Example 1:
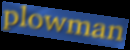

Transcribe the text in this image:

plowman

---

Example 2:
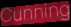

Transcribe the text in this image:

Cunning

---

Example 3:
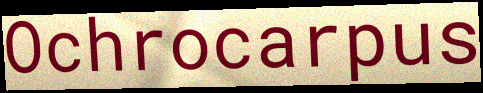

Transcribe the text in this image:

Ochrocarpus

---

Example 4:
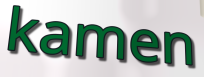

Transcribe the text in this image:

kamen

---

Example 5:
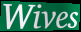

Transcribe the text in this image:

Wives